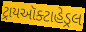
ટ્રાયઑક્ટાહેડ્રલ